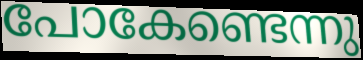
പോകേണ്ടെന്നു